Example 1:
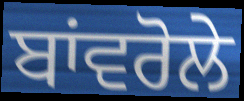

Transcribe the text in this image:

ਬਾਂਵਰੋਲੇ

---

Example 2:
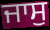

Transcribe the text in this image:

ਜਾਸੁ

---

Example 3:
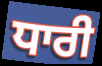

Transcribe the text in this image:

ਧਾਰੀ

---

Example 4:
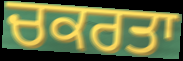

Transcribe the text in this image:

ਚਕਰਤਾ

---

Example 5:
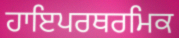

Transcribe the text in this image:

ਹਾਇਪਰਥਰਮਿਕ